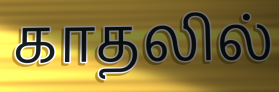
காதலில்